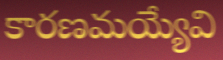
కారణమయ్యేవి